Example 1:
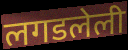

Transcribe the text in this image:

लगडलेली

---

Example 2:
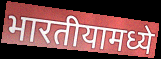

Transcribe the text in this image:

भारतीयामध्ये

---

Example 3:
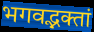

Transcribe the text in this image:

भगवद्भक्तां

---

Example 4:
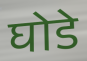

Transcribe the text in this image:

घोडे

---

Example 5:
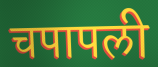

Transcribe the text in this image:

चपापली